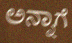
ಅನ್ನಾಗೆ